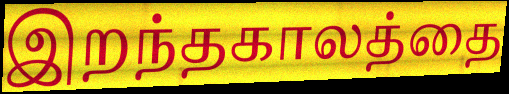
இறந்தகாலத்தை